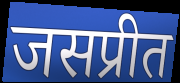
जसप्रीत